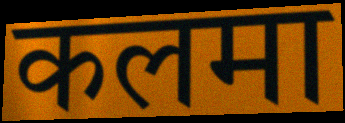
कलमा